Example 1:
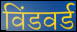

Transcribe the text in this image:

विंडवर्ड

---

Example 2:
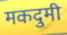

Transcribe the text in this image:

मकदुमी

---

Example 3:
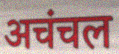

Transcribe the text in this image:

अचंचल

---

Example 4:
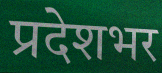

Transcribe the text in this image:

प्रदेशभर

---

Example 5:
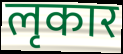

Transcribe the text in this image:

लृकार